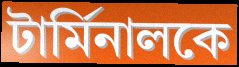
টার্মিনালকে